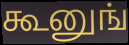
கூனுங்